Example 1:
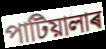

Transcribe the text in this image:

পাটিয়ালাৰ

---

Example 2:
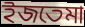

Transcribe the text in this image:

ইজতেমা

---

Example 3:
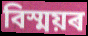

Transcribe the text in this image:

বিস্ময়ৰ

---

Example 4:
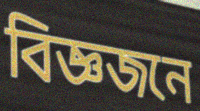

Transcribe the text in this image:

বিজ্ঞজনে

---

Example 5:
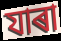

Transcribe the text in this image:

যাৰা